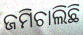
ଜମିଚାଲିଛି